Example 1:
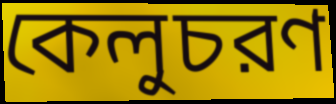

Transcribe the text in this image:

কেলুচরণ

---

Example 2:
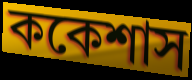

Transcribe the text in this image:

ককেশাস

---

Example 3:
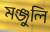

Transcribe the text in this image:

মঞ্জুলি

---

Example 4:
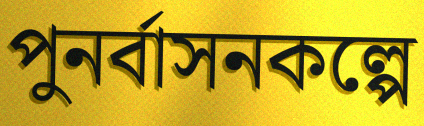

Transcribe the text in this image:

পুনর্বাসনকল্পে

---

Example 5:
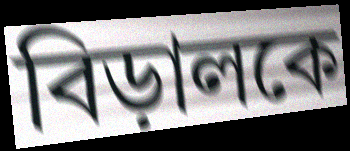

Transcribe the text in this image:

বিড়ালকে